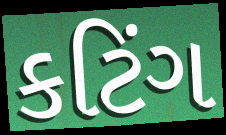
કટિંગ